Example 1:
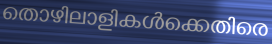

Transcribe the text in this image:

തൊഴിലാളികൾക്കെതിരെ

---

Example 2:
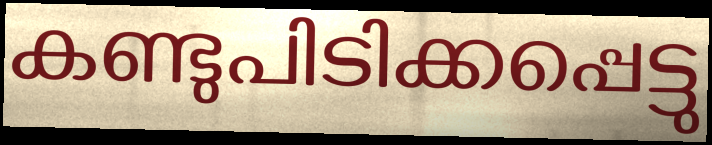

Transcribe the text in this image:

കണ്ടുപിടിക്കപ്പെട്ടു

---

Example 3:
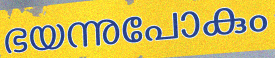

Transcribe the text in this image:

ഭയന്നുപോകും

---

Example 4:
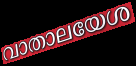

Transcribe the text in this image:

വാതാലയേശ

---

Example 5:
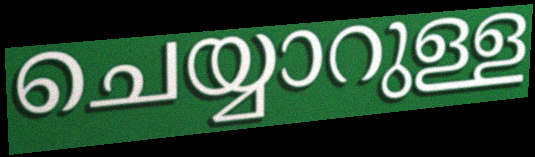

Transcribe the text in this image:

ചെയ്യാറുള്ള